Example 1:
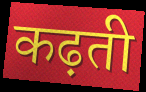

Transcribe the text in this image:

कढ़ती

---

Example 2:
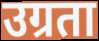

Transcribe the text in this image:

उग्रता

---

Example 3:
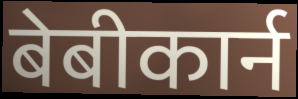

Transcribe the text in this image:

बेबीकार्न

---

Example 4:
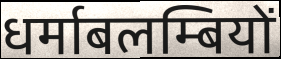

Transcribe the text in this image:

धर्माबलम्बियों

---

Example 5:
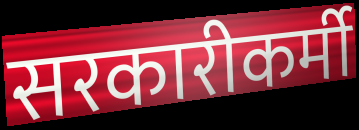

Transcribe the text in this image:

सरकारीकर्मी